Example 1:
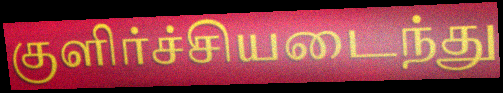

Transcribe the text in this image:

குளிர்ச்சியடைந்து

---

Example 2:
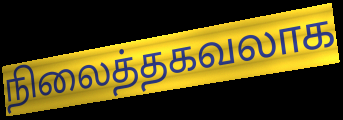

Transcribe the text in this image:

நிலைத்தகவலாக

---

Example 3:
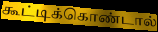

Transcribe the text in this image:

கூட்டிக்கொண்டால்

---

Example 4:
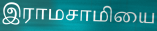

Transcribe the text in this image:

இராமசாமியை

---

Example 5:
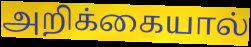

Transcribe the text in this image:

அறிக்கையால்